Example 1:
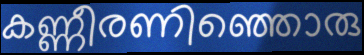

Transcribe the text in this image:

കണ്ണീരണിഞ്ഞൊരു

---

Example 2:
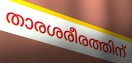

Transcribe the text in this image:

താരശരീരത്തിന്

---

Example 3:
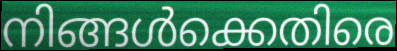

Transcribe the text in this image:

നിങ്ങൾക്കെതിരെ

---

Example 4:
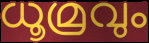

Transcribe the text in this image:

ധൂമ്രവും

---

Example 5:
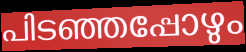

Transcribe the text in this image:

പിടഞ്ഞപ്പോഴും